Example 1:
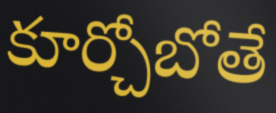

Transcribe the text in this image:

కూర్చోబోతే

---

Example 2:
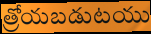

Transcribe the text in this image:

త్రోయబడుటయు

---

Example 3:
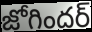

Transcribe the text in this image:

జోగిందర్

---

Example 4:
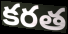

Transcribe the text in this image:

కరత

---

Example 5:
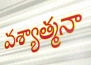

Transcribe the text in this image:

వశ్యాత్మనా